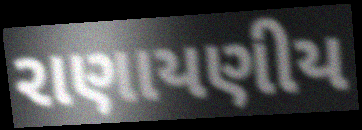
રાણાયણીય